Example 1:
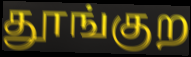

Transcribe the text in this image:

தூங்குற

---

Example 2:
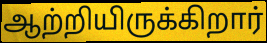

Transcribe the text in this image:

ஆற்றியிருக்கிறார்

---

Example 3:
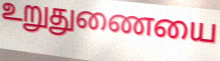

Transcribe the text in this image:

உறுதுணையை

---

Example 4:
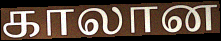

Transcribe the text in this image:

காலான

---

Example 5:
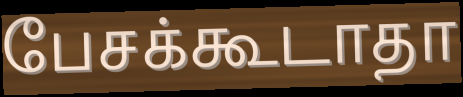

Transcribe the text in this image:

பேசக்கூடாதா